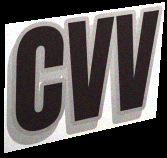
CVV